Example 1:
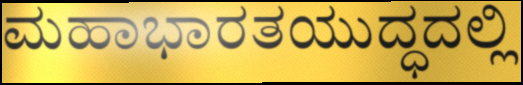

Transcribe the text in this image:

ಮಹಾಭಾರತಯುದ್ಧದಲ್ಲಿ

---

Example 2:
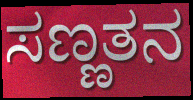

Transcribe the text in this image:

ಸಣ್ಣತನ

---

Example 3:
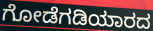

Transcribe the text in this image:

ಗೋಡೆಗಡಿಯಾರದ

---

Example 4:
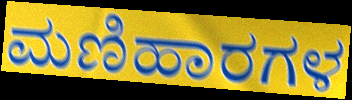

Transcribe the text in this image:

ಮಣಿಹಾರಗಳ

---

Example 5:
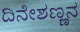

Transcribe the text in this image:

ದಿನೇಶಣ್ಣನ